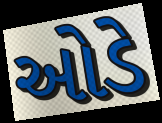
ઓડે